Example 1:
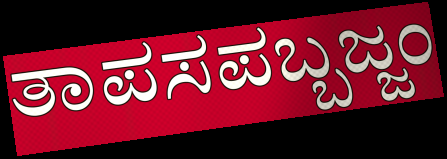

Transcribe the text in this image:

ತಾಪಸಪಬ್ಬಜ್ಜಂ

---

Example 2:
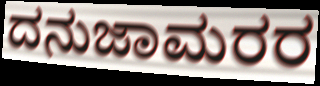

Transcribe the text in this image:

ದನುಜಾಮರರ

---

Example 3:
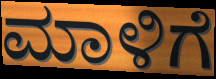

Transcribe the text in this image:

ಮಾಳಿಗೆ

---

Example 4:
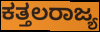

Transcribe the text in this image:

ಕತ್ತಲರಾಜ್ಯ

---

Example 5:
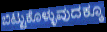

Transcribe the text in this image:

ಬಿಟ್ಟುಕೊಳ್ಳುವುದಕ್ಕೂ